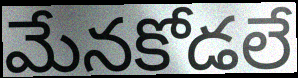
మేనకోడలే